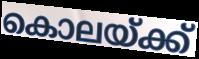
കൊലയ്ക്ക്